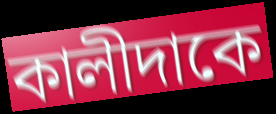
কালীদাকে